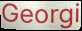
Georgi